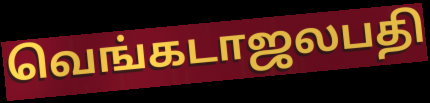
வெங்கடாஜலபதி